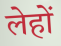
लेहों